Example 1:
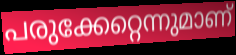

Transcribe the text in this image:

പരുക്കേറ്റെന്നുമാണ്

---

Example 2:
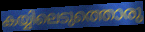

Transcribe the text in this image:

കയ്യിലെടുത്തൊരു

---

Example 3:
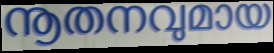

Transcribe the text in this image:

നൂതനവുമായ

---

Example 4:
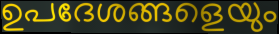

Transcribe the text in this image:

ഉപദേശങ്ങളെയും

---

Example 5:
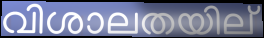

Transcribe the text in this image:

വിശാലതയില്